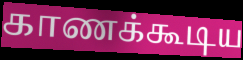
காணக்கூடிய